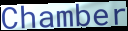
Chamber